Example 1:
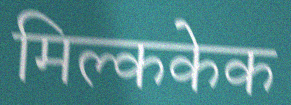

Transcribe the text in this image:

मिल्ककेक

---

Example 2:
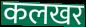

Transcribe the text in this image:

कलखर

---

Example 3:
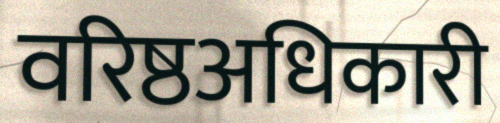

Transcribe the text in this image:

वरिष्ठअधिकारी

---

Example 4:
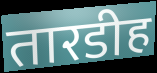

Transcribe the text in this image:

तारडीह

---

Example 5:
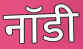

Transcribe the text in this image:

नॉडी